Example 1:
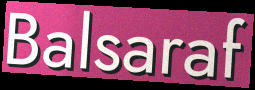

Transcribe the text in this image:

Balsaraf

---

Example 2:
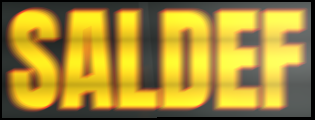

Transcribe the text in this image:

SALDEF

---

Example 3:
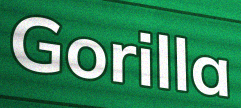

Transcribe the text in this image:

Gorilla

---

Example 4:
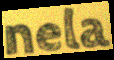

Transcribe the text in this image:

nela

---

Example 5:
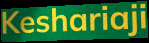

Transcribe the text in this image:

Keshariaji